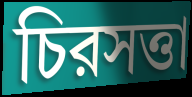
চিরসত্তা